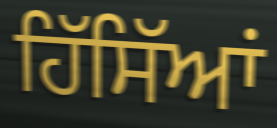
ਹਿੱਸਿੱਆਂ